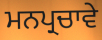
ਮਨਪ੍ਰਚਾਵੇ